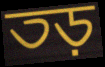
তড়